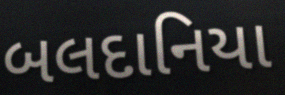
બલદાનિયા